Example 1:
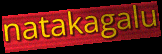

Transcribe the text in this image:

natakagalu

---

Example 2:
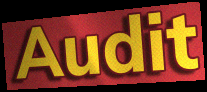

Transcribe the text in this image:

Audit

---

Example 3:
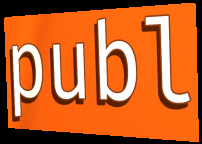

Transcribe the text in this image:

publ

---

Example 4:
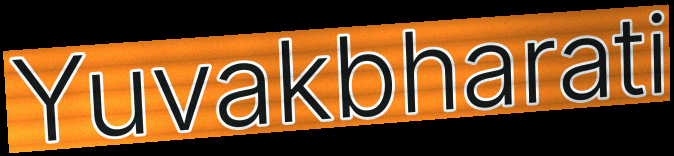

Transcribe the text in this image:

Yuvakbharati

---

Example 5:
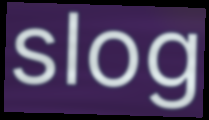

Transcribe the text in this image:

slog